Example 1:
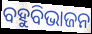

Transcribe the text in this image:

ବହୁବିଭାଜନ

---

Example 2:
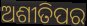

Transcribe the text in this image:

ଅଶୀତିପର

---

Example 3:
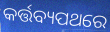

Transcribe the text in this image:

କର୍ତ୍ତବ୍ୟପଥରେ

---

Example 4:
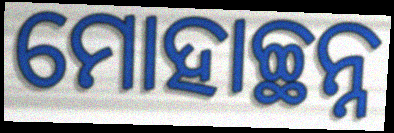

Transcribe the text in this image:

ମୋହାଚ୍ଛନ୍ନ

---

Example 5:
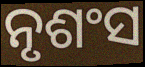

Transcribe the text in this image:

ନୃଶଂସ